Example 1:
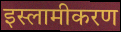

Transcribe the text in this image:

इस्लामीकरण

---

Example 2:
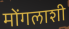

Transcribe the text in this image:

मोंगलाशी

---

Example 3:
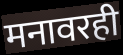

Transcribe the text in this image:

मनावरही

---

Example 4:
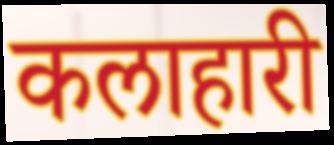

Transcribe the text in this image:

कलाहारी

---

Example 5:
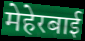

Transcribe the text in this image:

मेहेरबाई